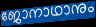
ജോനാഥാനും